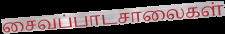
சைவப்பாடசாலைகள்